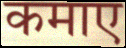
कमाए